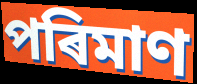
পৰিমাণ